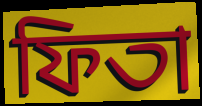
ফিতা